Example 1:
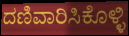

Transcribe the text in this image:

ದಣಿವಾರಿಸಿಕೊಳ್ಳಿ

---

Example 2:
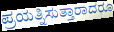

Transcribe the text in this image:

ಪ್ರಯತ್ನಿಸುತ್ತಾರಾದರೂ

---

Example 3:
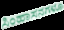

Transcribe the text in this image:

ಸಿಂಹಾಸನಗಳೂ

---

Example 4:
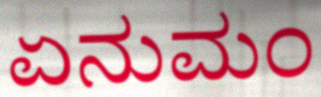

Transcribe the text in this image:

ಏನುಮಂ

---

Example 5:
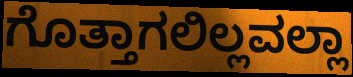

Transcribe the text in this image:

ಗೊತ್ತಾಗಲಿಲ್ಲವಲ್ಲಾ